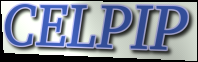
CELPIP